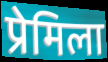
प्रेमिला